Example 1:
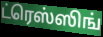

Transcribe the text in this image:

ட்ரெஸ்ஸிங்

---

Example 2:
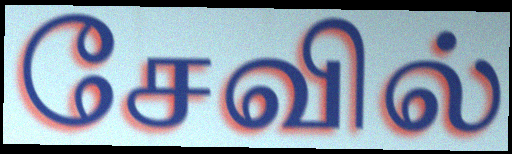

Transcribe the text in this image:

சேவில்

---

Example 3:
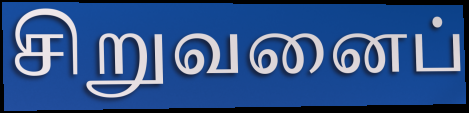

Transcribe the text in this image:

சிறுவனைப்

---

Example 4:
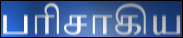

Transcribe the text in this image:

பரிசாகிய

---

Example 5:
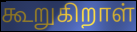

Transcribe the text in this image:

கூறுகிறாள்